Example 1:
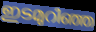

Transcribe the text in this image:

ഇടമുറിഞ്ഞ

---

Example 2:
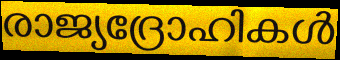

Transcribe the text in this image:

രാജ്യദ്രോഹികൾ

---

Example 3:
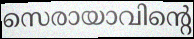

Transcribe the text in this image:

സെരായാവിന്റെ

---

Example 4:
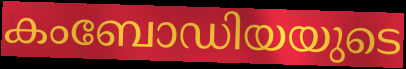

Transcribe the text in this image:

കംബോഡിയയുടെ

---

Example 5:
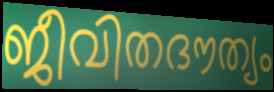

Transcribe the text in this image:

ജീവിതദൗത്യം